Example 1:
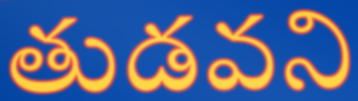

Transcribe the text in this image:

తుడవని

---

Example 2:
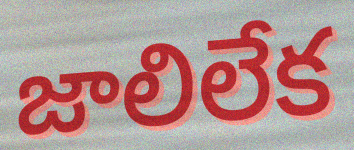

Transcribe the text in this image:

జాలిలేక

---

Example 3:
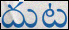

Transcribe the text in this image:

దుట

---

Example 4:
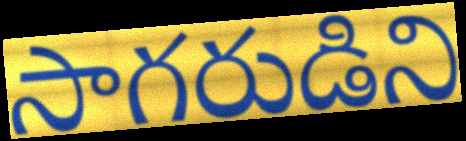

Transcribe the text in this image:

సాగరుడిని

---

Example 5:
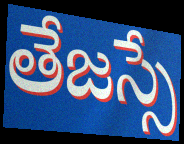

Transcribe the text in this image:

తేజస్సే